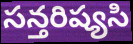
సన్తరిష్యసి